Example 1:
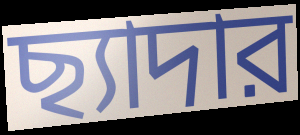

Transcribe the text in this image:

ছ্যাদার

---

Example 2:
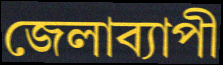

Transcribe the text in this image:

জেলাব্যাপী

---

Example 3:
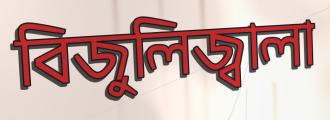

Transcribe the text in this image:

বিজুলিজ্বালা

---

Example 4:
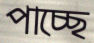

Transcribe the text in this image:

পাচ্ছে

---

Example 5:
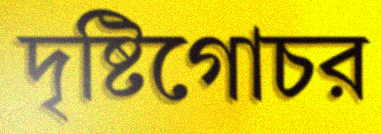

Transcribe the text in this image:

দৃষ্টিগোচর